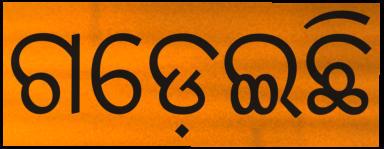
ଗଡ଼େଇଛି